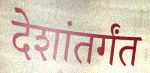
देशांतर्गंत